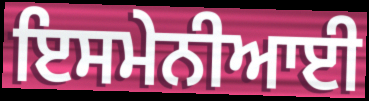
ਇਸਮੇਨੀਆਈ